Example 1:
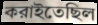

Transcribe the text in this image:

করাইতেছিল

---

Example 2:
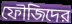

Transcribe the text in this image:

ফৌজিদের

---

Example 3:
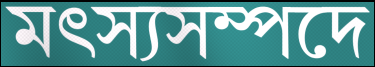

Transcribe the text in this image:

মৎস্যসম্পদে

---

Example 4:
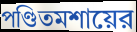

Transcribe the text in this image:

পণ্ডিতমশায়ের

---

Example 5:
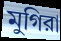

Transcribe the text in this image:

মুগিরা